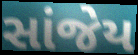
સાંજેય